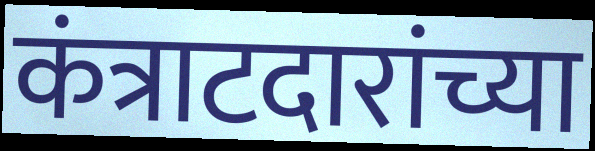
कंत्राटदारांच्या